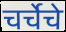
चर्चेचे